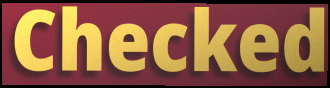
Checked